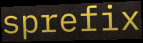
sprefix